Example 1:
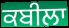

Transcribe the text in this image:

ਕਬੀਲਾ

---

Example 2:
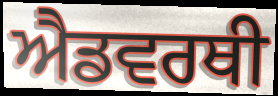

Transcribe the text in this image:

ਐਡਵਰਥੀ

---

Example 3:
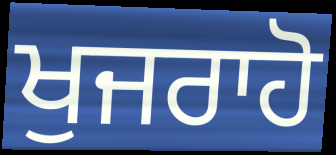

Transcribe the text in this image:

ਖੁਜਰਾਹੋ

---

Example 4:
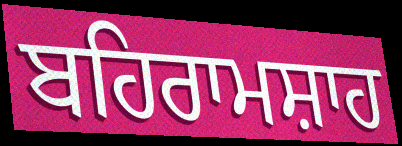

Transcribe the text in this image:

ਬਹਿਰਾਮਸ਼ਾਹ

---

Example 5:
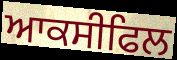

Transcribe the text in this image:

ਆਕਸੀਫਿਲ